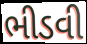
ભીડવી